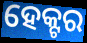
ହେକ୍ଟର